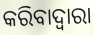
କରିବାଦ୍ବାରା